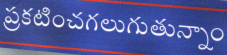
ప్రకటించగలుగుతున్నాం